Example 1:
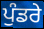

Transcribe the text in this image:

ਪੁੰਡਰੇ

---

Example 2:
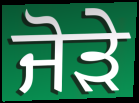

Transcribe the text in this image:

ਜੋਡ਼ੇ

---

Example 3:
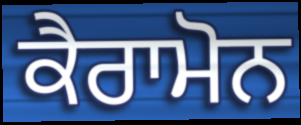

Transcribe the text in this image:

ਕੈਰਾਮੋਨ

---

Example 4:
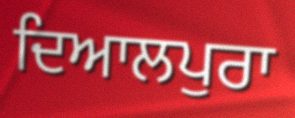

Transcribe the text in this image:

ਦਿਆਲਪੁਰਾ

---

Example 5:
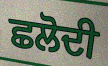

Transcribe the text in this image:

ਛਲੋਦੀ